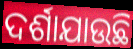
ଦର୍ଶାଯାଉଛି